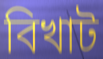
বিখাট